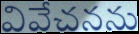
వివేచనను